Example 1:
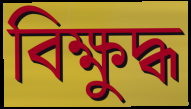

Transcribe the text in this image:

বিক্ষুদ্ধ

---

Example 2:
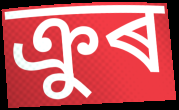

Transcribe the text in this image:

ক্ৰুৰ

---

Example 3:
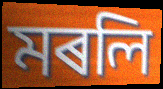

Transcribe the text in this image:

মৰলি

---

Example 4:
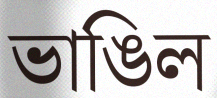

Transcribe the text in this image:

ভাঙিল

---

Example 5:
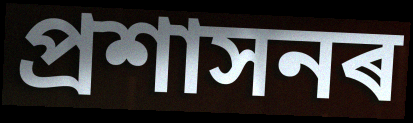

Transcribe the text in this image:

প্ৰশাসনৰ